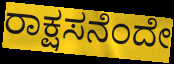
ರಾಕ್ಷಸನೆಂದೇ